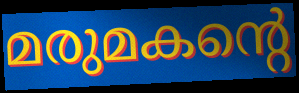
മരുമകന്റെ